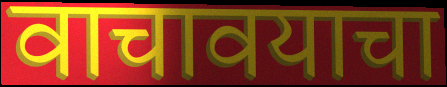
वाचावयाचा